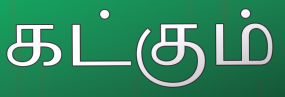
கட்கும்